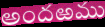
అందఱము